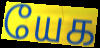
யேக